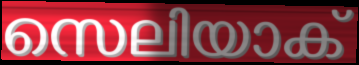
സെലിയാക്